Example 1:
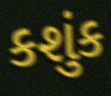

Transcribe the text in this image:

કશુંક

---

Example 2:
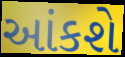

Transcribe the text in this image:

આંકશે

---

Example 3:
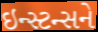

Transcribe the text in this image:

ઇન્સ્ટન્સને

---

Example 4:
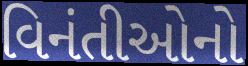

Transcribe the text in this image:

વિનંતીઓનો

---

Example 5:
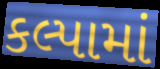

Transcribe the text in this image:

કલ્પામાં